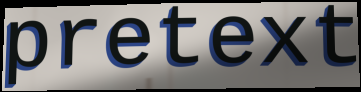
pretext